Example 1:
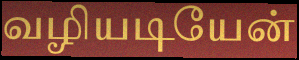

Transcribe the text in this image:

வழியடியேன்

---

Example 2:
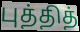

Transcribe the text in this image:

புத்தித்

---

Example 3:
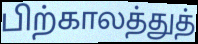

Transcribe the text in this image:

பிற்காலத்துத்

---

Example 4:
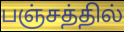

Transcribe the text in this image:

பஞ்சத்தில்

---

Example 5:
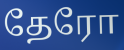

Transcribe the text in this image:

தேரோ